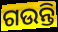
ଗଉନ୍ତି